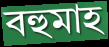
বহুমাহ